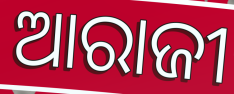
ଆରାଜୀ